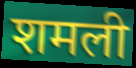
शमली